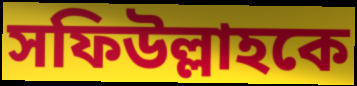
সফিউল্লাহকে